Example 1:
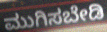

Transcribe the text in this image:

ಮುಗಿಸಬೇಡಿ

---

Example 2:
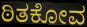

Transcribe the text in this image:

ಠಿತಕೋವ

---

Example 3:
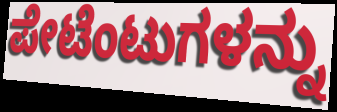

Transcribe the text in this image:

ಪೇಟೆಂಟುಗಳನ್ನು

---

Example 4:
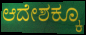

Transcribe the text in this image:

ಆದೇಶಕ್ಕೂ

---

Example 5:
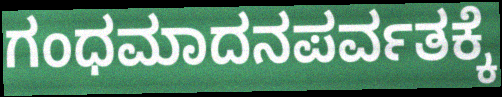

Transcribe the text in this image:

ಗಂಧಮಾದನಪರ್ವತಕ್ಕೆ